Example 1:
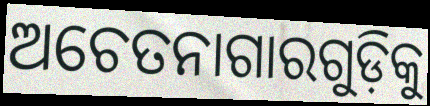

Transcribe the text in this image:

ଅଚେତନାଗାରଗୁଡ଼ିକୁ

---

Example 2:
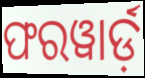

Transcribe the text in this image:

ଫରୱାର୍ଡ଼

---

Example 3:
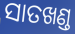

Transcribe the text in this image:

ସାତଖଣ୍ଡ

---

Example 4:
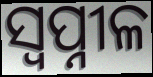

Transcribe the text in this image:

ସ୍ୱପ୍ନୀଳ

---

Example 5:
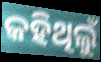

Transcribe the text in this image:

କହିଥିଲୁଁ